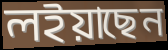
লইয়াছেন